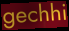
gechhi